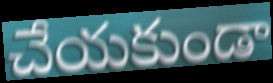
చేయకుండా